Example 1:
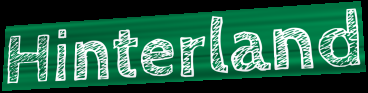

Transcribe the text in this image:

Hinterland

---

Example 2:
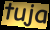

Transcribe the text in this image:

tuja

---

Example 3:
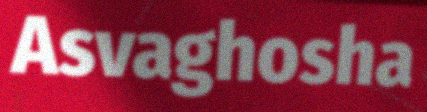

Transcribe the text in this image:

Asvaghosha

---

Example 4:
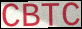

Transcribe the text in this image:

CBTC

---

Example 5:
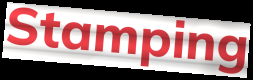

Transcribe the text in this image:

Stamping